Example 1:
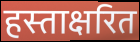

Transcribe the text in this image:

हस्ताक्षरित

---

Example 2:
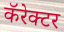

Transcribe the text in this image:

कॅरेक्टर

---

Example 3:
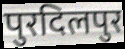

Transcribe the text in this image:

पुरदिलपुर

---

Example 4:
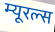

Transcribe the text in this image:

म्यूरल्स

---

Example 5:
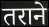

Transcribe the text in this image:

तराने